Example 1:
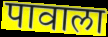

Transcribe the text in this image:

पावाला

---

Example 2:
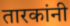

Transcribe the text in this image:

तारकांनी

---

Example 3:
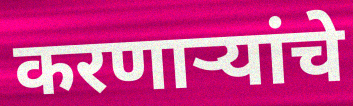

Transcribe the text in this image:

करणाऱ्यांचे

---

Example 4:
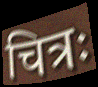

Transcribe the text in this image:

चित्रः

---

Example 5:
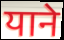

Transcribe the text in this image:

याने